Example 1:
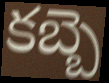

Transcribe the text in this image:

కబ్బె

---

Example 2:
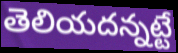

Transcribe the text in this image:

తెలియదన్నట్టే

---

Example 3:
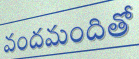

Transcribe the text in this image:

వందమందితో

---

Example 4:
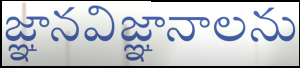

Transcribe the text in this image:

జ్ఞానవిజ్ఞానాలను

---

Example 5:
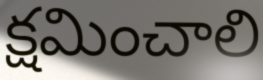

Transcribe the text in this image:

క్షమించాలి